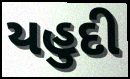
યહુદી